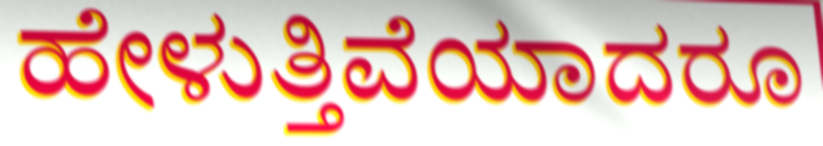
ಹೇಳುತ್ತಿವೆಯಾದರೂ